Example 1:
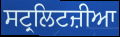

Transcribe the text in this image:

ਸਟ੍ਰਲਿਟਜ਼ੀਆ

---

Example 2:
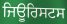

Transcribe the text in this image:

ਜਿਊਰਿਸਟਸ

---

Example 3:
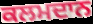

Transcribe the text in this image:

ਕਲਮਦਾਨ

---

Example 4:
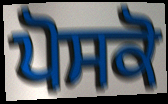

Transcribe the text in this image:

ਪੋਸਕੋ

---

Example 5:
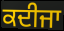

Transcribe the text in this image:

ਕਦੀਜਾ